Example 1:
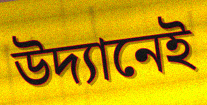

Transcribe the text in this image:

উদ্যানেই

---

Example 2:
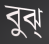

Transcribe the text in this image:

বুঝ্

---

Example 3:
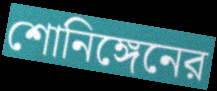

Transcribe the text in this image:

শোনিঙ্গেনের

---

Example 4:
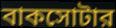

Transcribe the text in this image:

বাকসোটার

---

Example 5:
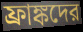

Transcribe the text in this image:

ফ্রাঙ্কদের